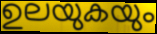
ഉലയുകയും